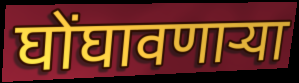
घोंघावणाऱ्या